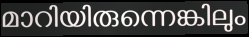
മാറിയിരുന്നെങ്കിലും